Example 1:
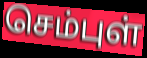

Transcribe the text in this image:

செம்புள்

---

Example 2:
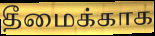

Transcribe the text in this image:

தீமைக்காக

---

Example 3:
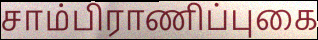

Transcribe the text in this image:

சாம்பிராணிப்புகை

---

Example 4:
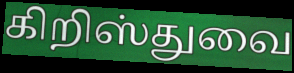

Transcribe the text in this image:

கிறிஸ்துவை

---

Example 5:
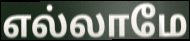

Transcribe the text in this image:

எல்லாமே